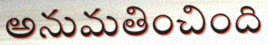
అనుమతించింది